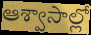
ఆశ్వాసాల్లో